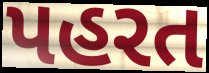
પહરત